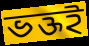
ভক্তই